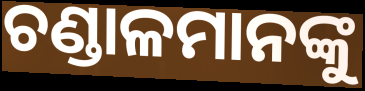
ଚଣ୍ଡାଳମାନଙ୍କୁ